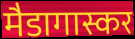
मैडागास्कर